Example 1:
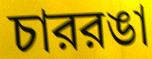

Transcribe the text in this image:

চাররঙা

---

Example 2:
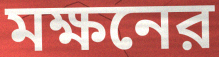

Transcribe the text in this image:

মক্ষনের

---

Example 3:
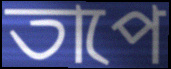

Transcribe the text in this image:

তাপে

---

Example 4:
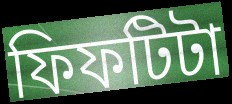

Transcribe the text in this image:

ফিফটিটা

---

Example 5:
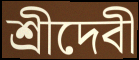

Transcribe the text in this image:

শ্রীদেবী